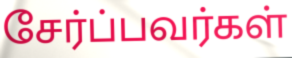
சேர்ப்பவர்கள்